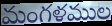
మంగళముల